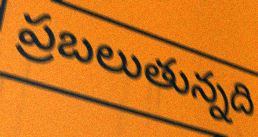
ప్రబలుతున్నది